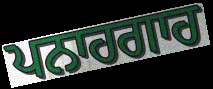
ਪਨਾਹਗਾਹ